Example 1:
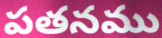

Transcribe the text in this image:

పతనము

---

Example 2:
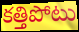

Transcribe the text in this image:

కత్తిపోటు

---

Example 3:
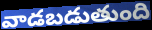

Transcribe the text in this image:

వాడబడుతుంది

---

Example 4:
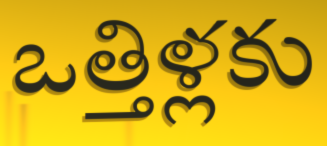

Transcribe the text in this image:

ఒత్తిళ్లకు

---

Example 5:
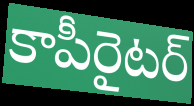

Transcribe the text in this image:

కాపీరైటర్